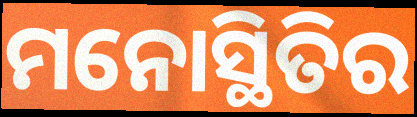
ମନୋସ୍ଥିତିର